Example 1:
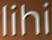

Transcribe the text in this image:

lihi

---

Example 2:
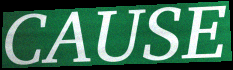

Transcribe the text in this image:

CAUSE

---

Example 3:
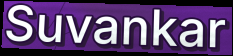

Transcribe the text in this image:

Suvankar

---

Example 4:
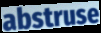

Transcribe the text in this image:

abstruse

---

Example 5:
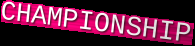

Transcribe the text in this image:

CHAMPIONSHIP